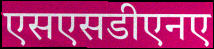
एसएसडीएनए